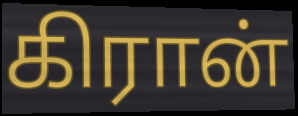
கிரான்